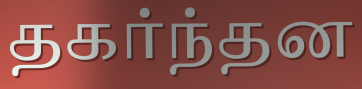
தகர்ந்தன